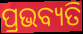
ପ୍ରଭବ୍ୟତି